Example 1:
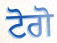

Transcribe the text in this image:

ਟੋਗੋ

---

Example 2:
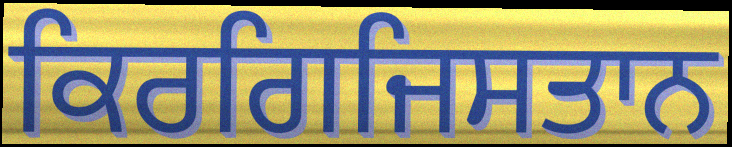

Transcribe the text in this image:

ਕਿਰਗਿਜਿਸਤਾਨ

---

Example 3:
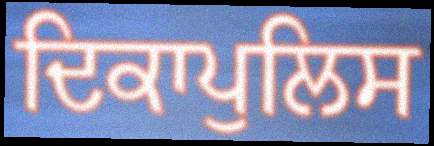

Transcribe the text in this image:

ਦਿਕਾਪੁਲਿਸ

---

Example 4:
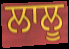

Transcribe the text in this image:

ਲਾਲੂ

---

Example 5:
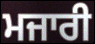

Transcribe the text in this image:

ਮਜਾਰੀ